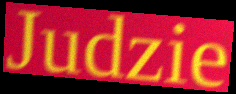
Judzie